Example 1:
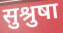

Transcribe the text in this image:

सुश्रुषा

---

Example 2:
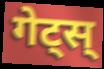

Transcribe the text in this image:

गेट्स्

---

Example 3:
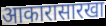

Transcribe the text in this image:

आकारासारखा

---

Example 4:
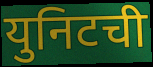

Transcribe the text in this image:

युनिटची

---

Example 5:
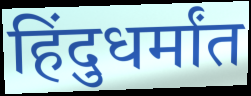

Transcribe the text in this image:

हिंदुधर्मांत